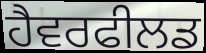
ਹੈਵਰਫੀਲਡ